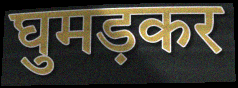
घुमड़कर